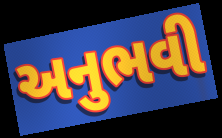
અનુભવી